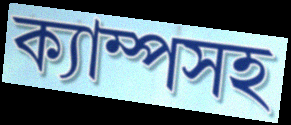
ক্যাম্পসহ